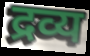
द्रव्य